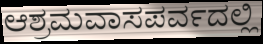
ಆಶ್ರಮವಾಸಪರ್ವದಲ್ಲಿ